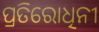
ପ୍ରତିରୋଧିନୀ